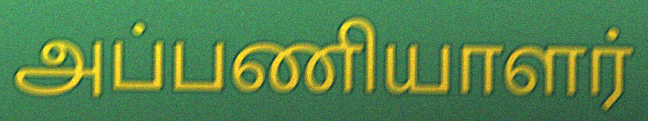
அப்பணியாளர்